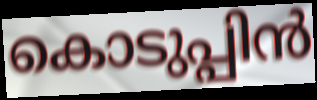
കൊടുപ്പിൻ